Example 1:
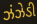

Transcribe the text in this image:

ઝંઝેડી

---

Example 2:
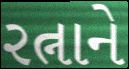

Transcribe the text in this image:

રત્નાને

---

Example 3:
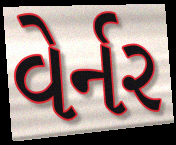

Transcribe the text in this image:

વેર્નર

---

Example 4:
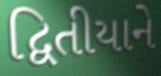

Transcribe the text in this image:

દ્વિતીયાને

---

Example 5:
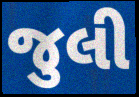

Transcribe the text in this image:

જુલી